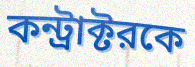
কন্ট্রাক্টরকে